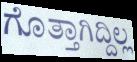
ಗೊತ್ತಾಗಿದ್ದಿಲ್ಲ